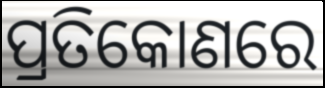
ପ୍ରତିକୋଣରେ